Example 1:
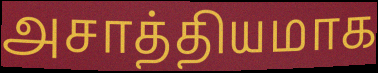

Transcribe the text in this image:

அசாத்தியமாக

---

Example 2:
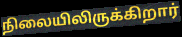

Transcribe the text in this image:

நிலையிலிருக்கிறார்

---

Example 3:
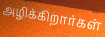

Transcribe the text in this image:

அழிக்கிறார்கள்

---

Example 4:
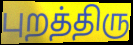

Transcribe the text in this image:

புறத்திரு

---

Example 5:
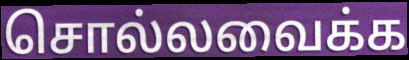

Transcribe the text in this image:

சொல்லவைக்க